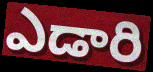
ఎడారి